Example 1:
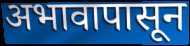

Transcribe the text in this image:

अभावापासून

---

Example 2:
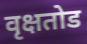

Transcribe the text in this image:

वृक्षतोड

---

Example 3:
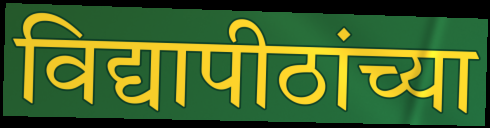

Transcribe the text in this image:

विद्यापीठांच्या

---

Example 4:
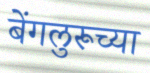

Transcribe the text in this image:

बेंगलुरूच्या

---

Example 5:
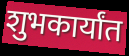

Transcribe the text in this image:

शुभकार्यांत